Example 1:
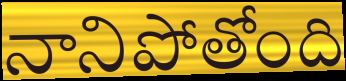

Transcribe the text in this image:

నానిపోతోంది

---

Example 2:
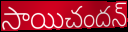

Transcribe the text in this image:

సాయిచందన్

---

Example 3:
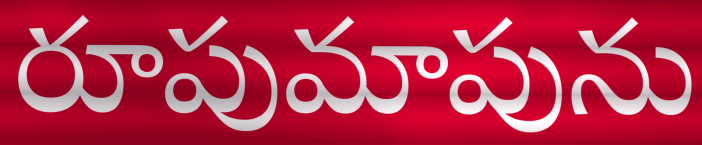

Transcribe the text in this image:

రూపుమాపును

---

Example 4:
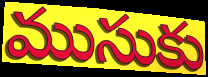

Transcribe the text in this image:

ముసుకు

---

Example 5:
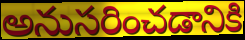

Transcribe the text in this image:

అనుసరించడానికి